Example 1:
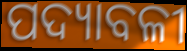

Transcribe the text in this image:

ପଦ୍ୟାବଳୀ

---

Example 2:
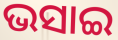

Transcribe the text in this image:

ଭସାଇ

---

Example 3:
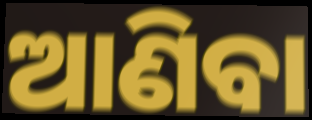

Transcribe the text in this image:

ଆଣିବା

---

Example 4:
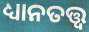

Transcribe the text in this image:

ଧ୍ୟାନତତ୍ତ୍ୱ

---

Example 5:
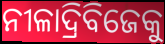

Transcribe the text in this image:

ନୀଳାଦ୍ରିବିଜେକୁ